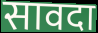
सावदा